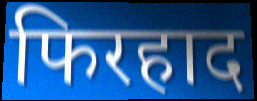
फिरहाद